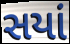
સયાં